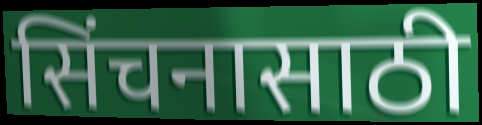
सिंचनासाठी